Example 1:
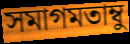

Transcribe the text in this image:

সমাগমতাম্বু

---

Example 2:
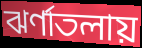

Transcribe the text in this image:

ঝর্ণাতলায়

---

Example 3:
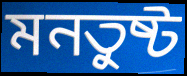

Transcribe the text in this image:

মনতুষ্ট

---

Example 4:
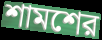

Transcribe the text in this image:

শামশের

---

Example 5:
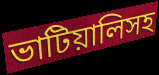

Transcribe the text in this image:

ভাটিয়ালিসহ